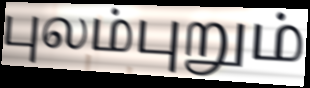
புலம்புறும்